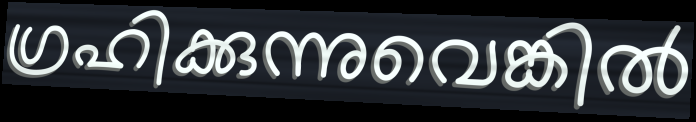
ഗ്രഹിക്കുന്നുവെങ്കിൽ